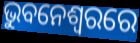
ଭୁବନେଶ୍ବରରେ